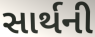
સાર્થની